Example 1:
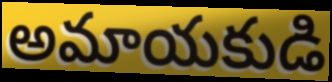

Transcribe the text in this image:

అమాయకుడి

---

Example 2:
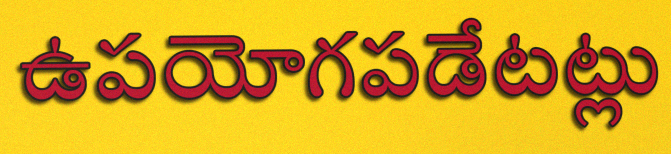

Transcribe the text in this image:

ఉపయోగపడేటట్లు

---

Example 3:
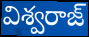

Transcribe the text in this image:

విశ్వరాజ్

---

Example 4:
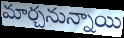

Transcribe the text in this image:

మార్చనున్నాయి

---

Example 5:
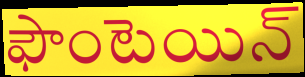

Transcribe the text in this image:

ఫౌంటెయిన్